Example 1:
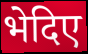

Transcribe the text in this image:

भेदिए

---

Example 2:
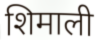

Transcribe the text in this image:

शिमाली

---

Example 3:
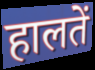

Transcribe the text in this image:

हालतें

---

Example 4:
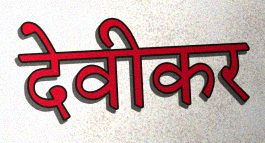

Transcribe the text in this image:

देवीकर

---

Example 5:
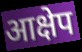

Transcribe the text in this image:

आक्षेप